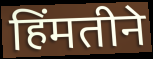
हिंमतीने